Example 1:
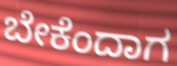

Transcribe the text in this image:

ಬೇಕೆಂದಾಗ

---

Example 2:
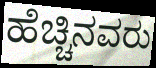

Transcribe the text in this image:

ಹೆಚ್ಚಿನವರು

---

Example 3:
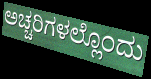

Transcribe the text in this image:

ಅಚ್ಚರಿಗಳಲ್ಲೊಂದು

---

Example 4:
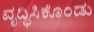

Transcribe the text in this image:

ವೃದ್ಧಿಸಿಕೊಂಡು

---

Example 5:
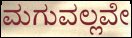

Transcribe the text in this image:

ಮಗುವಲ್ಲವೇ